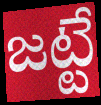
జట్టే